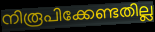
നിരൂപിക്കേണ്ടതില്ല